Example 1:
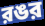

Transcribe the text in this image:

রঙর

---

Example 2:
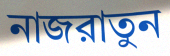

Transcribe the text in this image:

নাজরাতুন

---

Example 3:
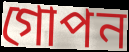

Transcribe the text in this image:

গোপন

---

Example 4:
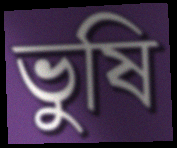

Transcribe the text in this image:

ভুষি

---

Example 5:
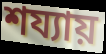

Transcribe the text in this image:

শয্যায়